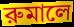
রুমালে